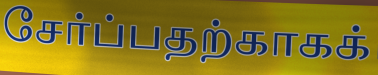
சேர்ப்பதற்காகக்